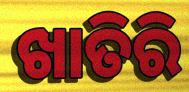
ଖାତିରି